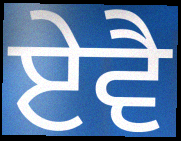
ਏਵੈ